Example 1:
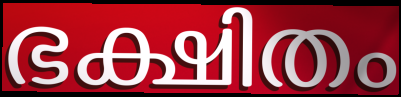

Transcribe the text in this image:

ഭക്ഷിതം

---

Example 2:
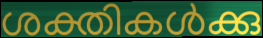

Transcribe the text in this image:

ശക്തികൾക്കു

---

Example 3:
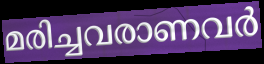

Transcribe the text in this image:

മരിച്ചവരാണവർ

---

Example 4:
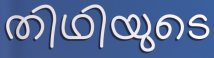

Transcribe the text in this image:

തിഥിയുടെ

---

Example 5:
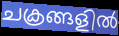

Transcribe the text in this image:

ചക്രങ്ങളിൽ